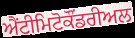
ਐਂਟੀਮਿਟੋਕੌਂਡਰੀਅਲ